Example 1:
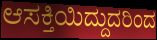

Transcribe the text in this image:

ಆಸಕ್ತಿಯಿದ್ದುದರಿಂದ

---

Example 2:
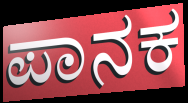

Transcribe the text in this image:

ಪಾನಕ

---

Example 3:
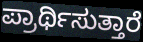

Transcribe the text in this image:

ಪ್ರಾರ್ಥಿಸುತ್ತಾರೆ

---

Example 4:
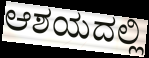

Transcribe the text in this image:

ಆಶಯದಲ್ಲಿ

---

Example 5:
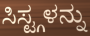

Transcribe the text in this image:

ಸಿಸ್ಟ್ಗಳನ್ನು